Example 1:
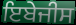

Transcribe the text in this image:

ਇਬੇਜੀਸ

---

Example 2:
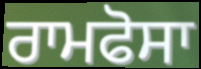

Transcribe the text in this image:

ਰਾਮਫੋਸਾ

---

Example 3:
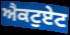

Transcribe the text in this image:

ਐਕਟੁਏਟ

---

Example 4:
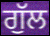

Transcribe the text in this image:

ਗੁੱਲ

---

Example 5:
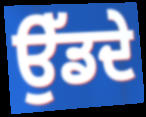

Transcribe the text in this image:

ਉੱਡਦੇ